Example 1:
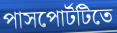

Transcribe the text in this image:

পাসপোর্টটিতে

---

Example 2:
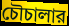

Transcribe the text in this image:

চৌচালার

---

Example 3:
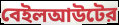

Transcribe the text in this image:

বেইলআউটের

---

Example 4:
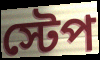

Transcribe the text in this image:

স্টেপ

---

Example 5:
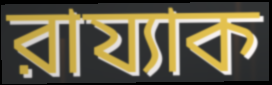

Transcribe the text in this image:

রায্যাক